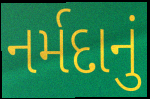
નર્મદાનું